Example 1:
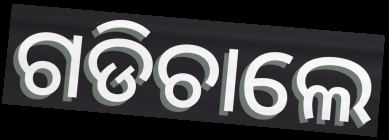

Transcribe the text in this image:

ଗଡିଚାଲେ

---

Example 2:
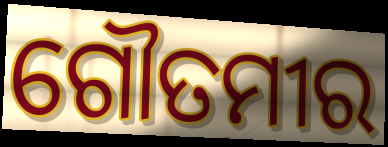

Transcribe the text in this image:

ଗୌତମୀର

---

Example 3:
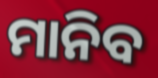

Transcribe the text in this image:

ମାନିବ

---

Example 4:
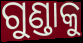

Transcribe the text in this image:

ଗୁଣ୍ଡାକୁ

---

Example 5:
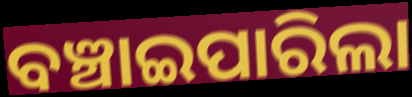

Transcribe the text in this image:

ବଞ୍ଚାଇପାରିଲା